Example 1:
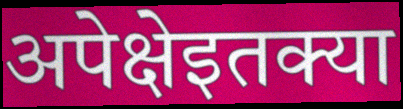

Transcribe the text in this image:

अपेक्षेइतक्या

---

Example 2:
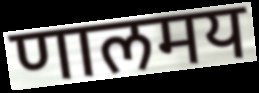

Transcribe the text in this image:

णालमय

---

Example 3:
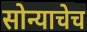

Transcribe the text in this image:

सोन्याचेच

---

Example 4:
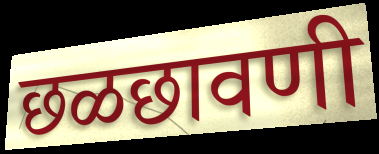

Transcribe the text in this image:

छळछावणी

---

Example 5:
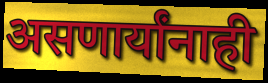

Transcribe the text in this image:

असणार्यांनाही